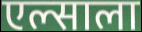
एल्साला